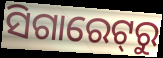
ସିଗାରେଟ୍‌ରୁ